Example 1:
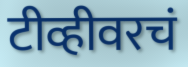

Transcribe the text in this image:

टीव्हीवरचं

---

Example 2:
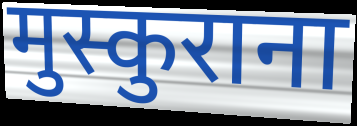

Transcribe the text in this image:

मुस्कुराना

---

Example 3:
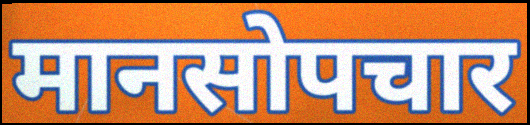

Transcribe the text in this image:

मानसोपचार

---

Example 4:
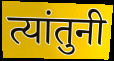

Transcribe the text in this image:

त्यांतुनी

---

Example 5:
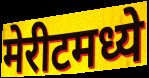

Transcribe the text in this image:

मेरीटमध्ये